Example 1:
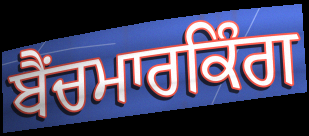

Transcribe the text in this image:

ਬੈਂਚਮਾਰਕਿੰਗ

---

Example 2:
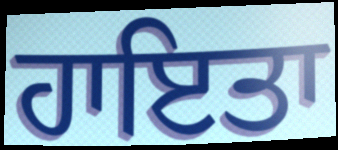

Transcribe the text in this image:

ਹਾਇਤਾ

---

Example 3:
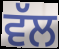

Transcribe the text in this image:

ਵੱਲ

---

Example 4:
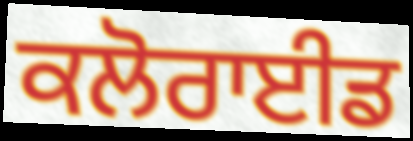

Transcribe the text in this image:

ਕਲੋਰਾਈਡ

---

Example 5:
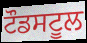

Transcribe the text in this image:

ਟੌਡਸਟੂਲ